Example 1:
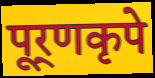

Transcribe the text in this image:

पूर्णकृपे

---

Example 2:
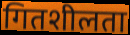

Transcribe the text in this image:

गितशीलता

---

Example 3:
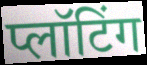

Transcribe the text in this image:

प्लॉटिंग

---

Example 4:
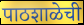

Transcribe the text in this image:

पाठशाळेची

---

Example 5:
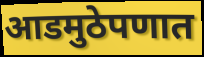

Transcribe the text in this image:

आडमुठेपणात